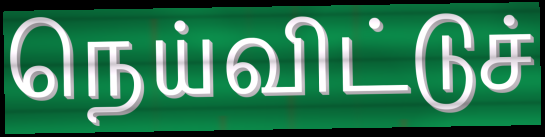
நெய்விட்டுச்